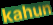
kahun